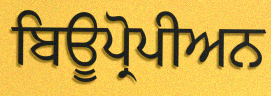
ਬਿਊਪ੍ਰੋਪੀਅਨ